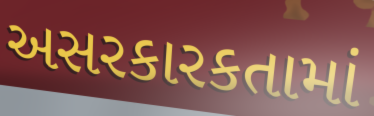
અસરકારકતામાં